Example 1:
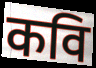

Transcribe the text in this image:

कवि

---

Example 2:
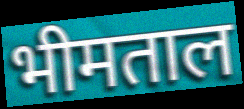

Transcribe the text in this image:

भीमताल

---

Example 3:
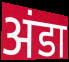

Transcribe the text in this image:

अंडा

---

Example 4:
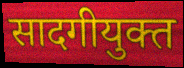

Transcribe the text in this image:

सादगीयुक्त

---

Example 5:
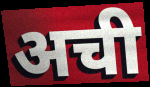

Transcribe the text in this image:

अची